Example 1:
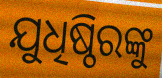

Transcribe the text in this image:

ଯୁଧିଷ୍ଠିରଙ୍କୁ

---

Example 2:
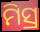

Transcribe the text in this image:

ମିସ୍ର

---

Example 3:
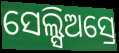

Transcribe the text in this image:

ସେଲ୍ସିଅସ୍ରେ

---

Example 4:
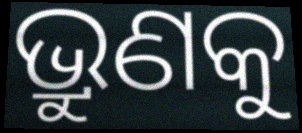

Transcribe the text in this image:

ଭ୍ରୁଣକୁ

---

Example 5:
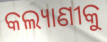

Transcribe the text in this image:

କଲ୍ୟାଣୀକୁ